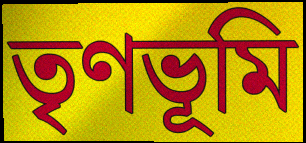
তৃণভূমি